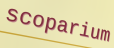
scoparium